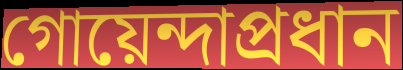
গোয়েন্দাপ্রধান